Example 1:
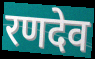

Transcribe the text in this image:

रणदेव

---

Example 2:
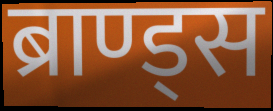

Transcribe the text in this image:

ब्राण्‍ड्स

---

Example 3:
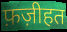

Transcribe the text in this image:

फ़ज़ीहत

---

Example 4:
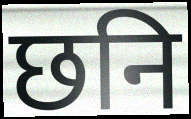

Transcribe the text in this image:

छनि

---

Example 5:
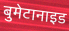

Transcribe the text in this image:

बुमेटानाइड